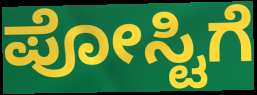
ಪೋಸ್ಟಿಗೆ